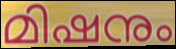
മിഷനും